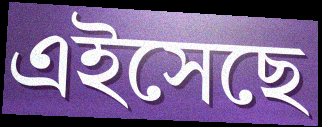
এইসেছে